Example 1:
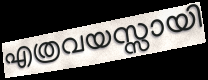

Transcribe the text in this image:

എത്രവയസ്സായി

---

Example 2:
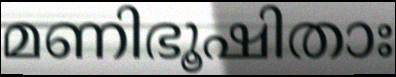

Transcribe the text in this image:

മണിഭൂഷിതാഃ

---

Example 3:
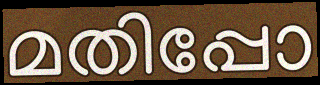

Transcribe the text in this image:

മതിപ്പോ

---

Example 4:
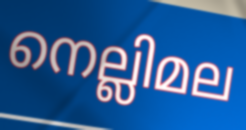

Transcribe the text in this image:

നെല്ലിമല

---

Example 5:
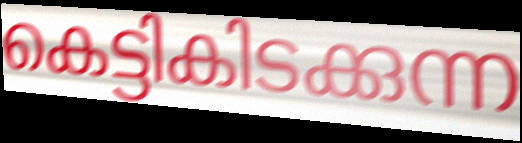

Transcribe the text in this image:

കെട്ടികിടക്കുന്ന